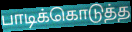
பாடிக்கொடுத்த